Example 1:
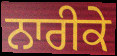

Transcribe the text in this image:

ਨਾਰੀਕੇ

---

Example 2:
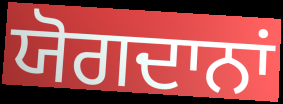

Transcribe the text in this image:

ਯੋਗਦਾਨਾਂ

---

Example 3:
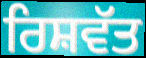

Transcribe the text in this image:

ਰਿਸ਼ਵੱਤ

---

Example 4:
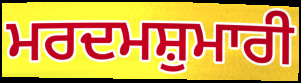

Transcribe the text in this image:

ਮਰਦਮਸ਼ੁਮਾਰੀ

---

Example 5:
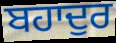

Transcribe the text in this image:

ਬਹਾਦੁਰ